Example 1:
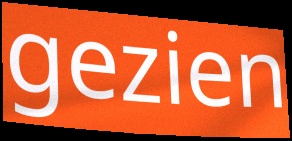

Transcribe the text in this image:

gezien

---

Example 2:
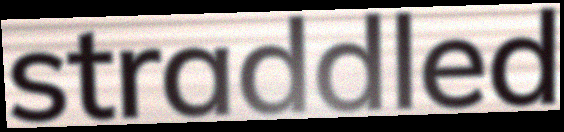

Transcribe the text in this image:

straddled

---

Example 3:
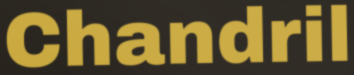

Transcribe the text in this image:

Chandril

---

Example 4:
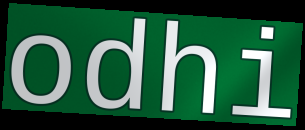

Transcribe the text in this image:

odhi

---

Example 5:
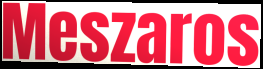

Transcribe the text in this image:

Meszaros